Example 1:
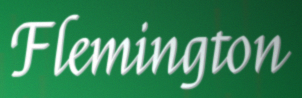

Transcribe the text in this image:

Flemington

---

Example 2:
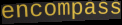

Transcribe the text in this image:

encompass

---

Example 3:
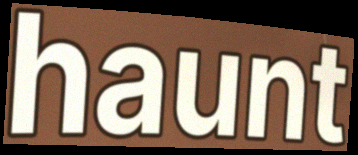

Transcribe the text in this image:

haunt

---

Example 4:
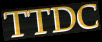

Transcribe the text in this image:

TTDC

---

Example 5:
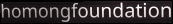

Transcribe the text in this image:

homongfoundation